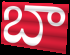
బా